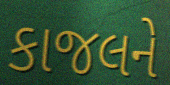
કાજલને